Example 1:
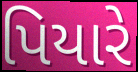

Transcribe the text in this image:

પિયારે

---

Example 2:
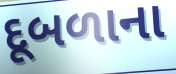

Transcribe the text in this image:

દૂબળાના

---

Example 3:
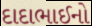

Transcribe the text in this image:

દાદાભાઈનો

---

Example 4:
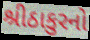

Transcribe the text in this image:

શ્રીઠાકુરનો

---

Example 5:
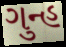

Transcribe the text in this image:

ગુન્હ